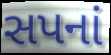
સપનાં